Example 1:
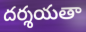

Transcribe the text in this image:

దర్శయతా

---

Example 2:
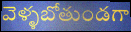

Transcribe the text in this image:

వెళ్ళబోతుండగా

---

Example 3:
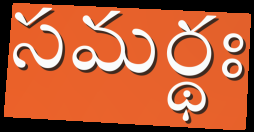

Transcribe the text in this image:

సమర్థః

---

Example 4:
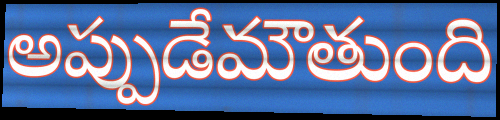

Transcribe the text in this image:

అప్పుడేమౌతుంది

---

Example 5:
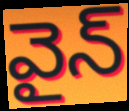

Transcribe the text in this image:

వైన్